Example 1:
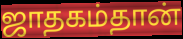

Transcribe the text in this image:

ஜாதகம்தான்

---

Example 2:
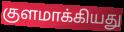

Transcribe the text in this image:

குளமாக்கியது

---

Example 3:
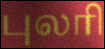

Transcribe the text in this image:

புலரி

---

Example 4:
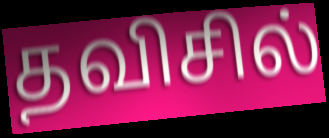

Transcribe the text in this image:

தவிசில்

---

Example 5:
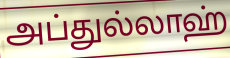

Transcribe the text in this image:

அப்துல்லாஹ்